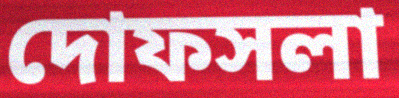
দোফসলা